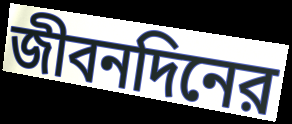
জীবনদিনের